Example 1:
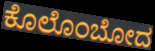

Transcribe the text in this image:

ಕೊಲೊಂಬೋದ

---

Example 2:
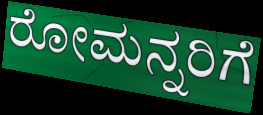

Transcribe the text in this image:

ರೋಮನ್ನರಿಗೆ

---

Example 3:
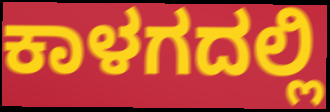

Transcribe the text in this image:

ಕಾಳಗದಲ್ಲಿ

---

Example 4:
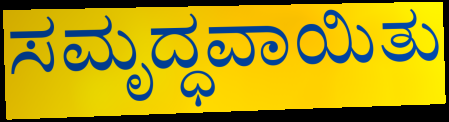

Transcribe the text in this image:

ಸಮೃದ್ಧವಾಯಿತು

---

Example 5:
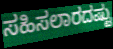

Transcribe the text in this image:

ಸಹಿಸಲಾರದಷ್ಟು